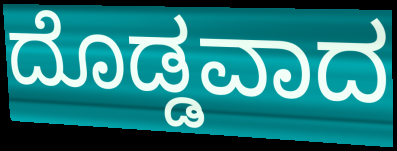
ದೊಡ್ಡವಾದ